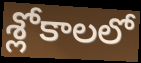
శ్లోకాలలో